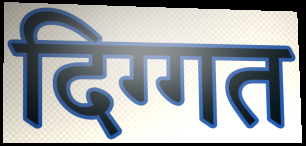
दिग्गत